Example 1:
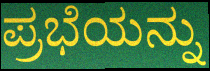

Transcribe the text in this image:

ಪ್ರಭೆಯನ್ನು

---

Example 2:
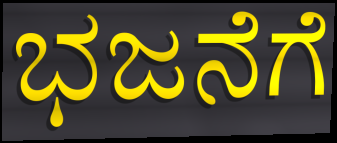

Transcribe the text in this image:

ಭಜನೆಗೆ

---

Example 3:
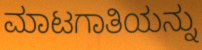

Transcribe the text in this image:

ಮಾಟಗಾತಿಯನ್ನು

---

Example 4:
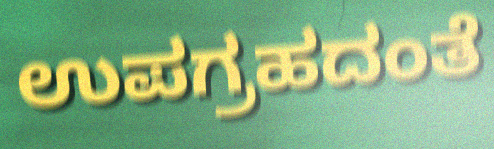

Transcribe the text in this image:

ಉಪಗ್ರಹದಂತೆ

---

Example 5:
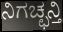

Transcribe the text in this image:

ನಿಗಚ್ಛನ್ತಿ